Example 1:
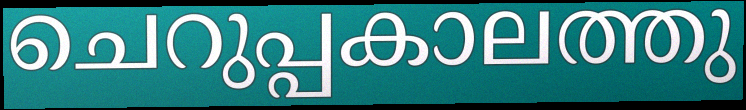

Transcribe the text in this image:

ചെറുപ്പകാലത്തു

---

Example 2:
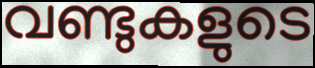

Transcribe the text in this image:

വണ്ടുകളുടെ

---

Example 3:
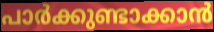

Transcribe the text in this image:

പാർക്കുണ്ടാക്കാൻ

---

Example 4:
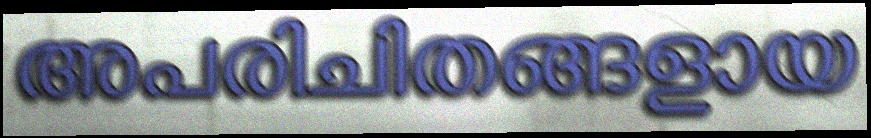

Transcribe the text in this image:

അപരിചിതങ്ങളായ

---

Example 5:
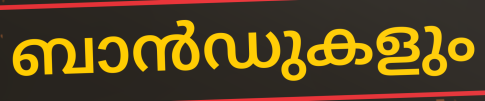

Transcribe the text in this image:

ബാൻഡുകളും